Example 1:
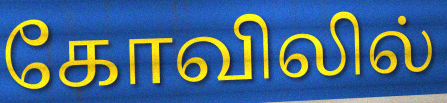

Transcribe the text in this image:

கோவிலில்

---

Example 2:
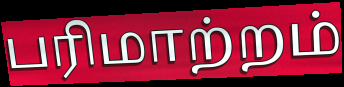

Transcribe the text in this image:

பரிமாற்றம்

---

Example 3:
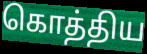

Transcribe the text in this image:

கொத்திய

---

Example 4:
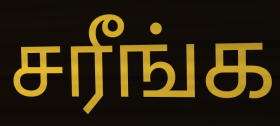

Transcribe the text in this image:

சரீங்க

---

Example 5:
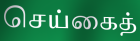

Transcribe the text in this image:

செய்கைத்